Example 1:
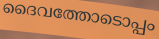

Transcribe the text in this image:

ദൈവത്തോടൊപ്പം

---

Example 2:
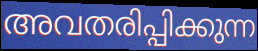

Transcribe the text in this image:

അവതരിപ്പിക്കുന്ന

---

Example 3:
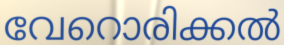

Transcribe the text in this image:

വേറൊരിക്കൽ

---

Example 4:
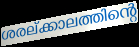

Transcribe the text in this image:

ശരല്ക്കാലത്തിന്റെ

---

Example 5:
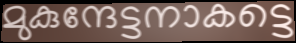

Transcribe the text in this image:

മുകുന്ദേട്ടനാകട്ടെ